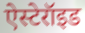
ऐस्टेरॉइड